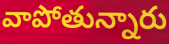
వాపోతున్నారు